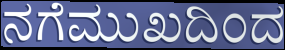
ನಗೆಮುಖದಿಂದ